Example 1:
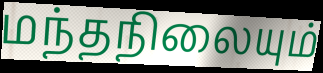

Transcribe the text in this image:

மந்தநிலையும்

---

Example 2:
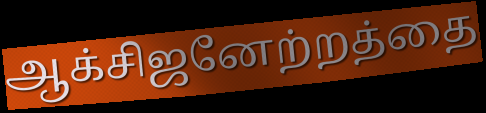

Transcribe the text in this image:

ஆக்சிஜனேற்றத்தை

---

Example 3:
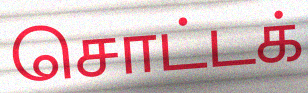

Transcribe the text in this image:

சொட்டக்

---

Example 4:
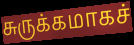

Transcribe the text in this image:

சுருக்கமாகச்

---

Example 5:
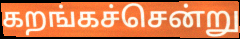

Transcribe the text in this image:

கறங்கச்சென்று